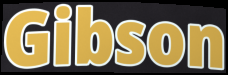
Gibson